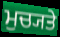
ਮੁਚ੍ਯਤੇ